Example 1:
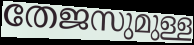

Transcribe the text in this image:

തേജസുമുള്ള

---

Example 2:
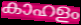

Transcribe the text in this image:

കാഹളം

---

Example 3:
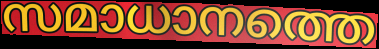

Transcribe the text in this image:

സമാധാനത്തെ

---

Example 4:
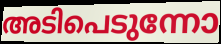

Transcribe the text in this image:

അടിപെടുന്നോ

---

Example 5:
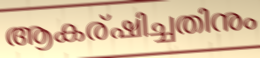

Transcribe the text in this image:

ആകര്ഷിച്ചതിനും